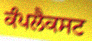
ਕੰਪਲੈਕਸਟ